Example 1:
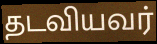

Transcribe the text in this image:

தடவியவர்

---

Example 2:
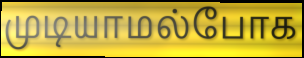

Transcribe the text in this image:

முடியாமல்போக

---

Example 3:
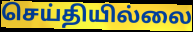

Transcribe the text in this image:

செய்தியில்லை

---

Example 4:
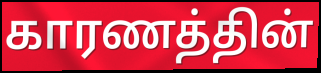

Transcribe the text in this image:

காரணத்தின்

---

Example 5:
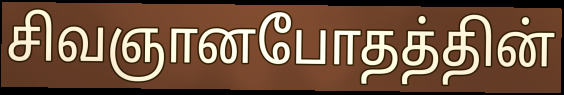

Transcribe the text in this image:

சிவஞானபோதத்தின்